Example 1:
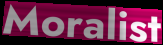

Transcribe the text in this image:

Moralist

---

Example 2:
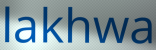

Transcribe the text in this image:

lakhwa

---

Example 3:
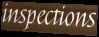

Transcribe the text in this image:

inspections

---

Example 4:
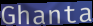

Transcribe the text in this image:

Ghanta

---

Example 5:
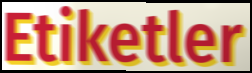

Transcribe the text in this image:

Etiketler